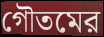
গৌতমের